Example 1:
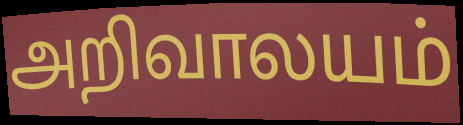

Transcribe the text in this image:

அறிவாலயம்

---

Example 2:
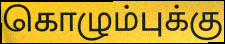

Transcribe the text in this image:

கொழும்புக்கு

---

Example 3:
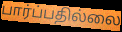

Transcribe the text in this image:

பார்ப்பதில்லை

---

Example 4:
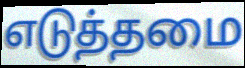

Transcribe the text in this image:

எடுத்தமை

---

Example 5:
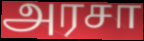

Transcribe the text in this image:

அரசா